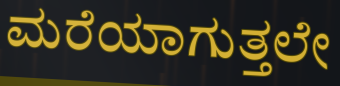
ಮರೆಯಾಗುತ್ತಲೇ